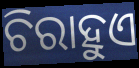
ଚିରାହୁଏ